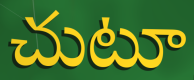
చుటూ